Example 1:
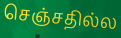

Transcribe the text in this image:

செஞ்சதில்ல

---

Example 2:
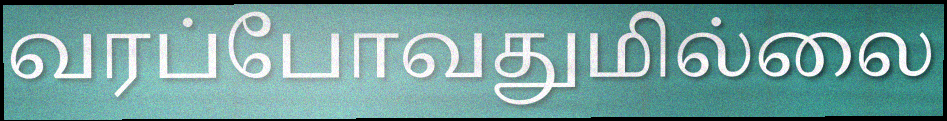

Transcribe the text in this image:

வரப்போவதுமில்லை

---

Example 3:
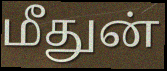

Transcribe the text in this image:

மீதுன்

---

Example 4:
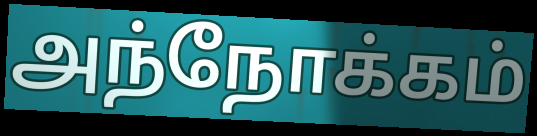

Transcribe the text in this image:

அந்நோக்கம்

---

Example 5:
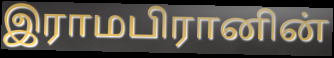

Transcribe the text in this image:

இராமபிரானின்